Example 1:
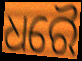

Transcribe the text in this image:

ଧରୈ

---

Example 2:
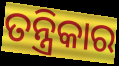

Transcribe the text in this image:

ତନ୍ତ୍ରିକାର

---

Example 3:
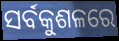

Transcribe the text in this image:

ସର୍ବକୁଶଳରେ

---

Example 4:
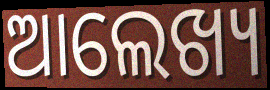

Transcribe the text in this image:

ଆଲେଖ୍ୟ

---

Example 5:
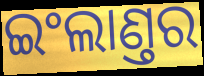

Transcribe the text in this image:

ଇଂଲାଣ୍ତର